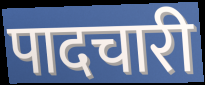
पादचारी